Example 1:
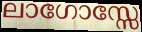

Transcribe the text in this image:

ലാഗോസ്സേ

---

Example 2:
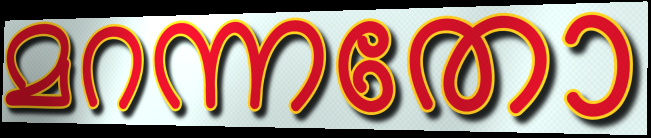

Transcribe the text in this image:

മറന്നതോ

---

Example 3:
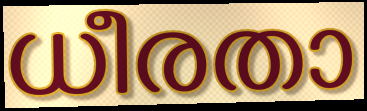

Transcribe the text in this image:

ധീരതാ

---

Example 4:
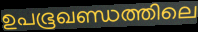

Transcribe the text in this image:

ഉപഭൂഖണ്ഡത്തിലെ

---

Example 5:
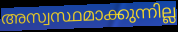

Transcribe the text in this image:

അസ്വസ്ഥമാക്കുന്നില്ല